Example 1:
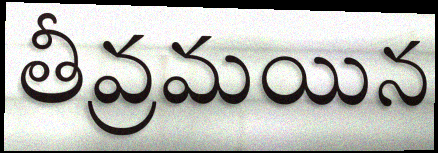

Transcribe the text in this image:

తీవ్రమయిన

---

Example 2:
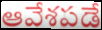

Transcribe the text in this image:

ఆవేశపడే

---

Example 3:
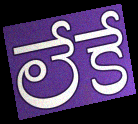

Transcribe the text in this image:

లేకే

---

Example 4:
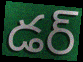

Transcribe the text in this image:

డర్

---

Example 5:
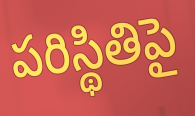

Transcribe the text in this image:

పరిస్థితిపై